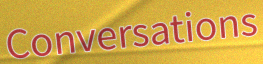
Conversations